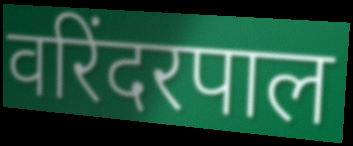
वरिंदरपाल